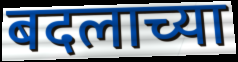
बदलाच्या